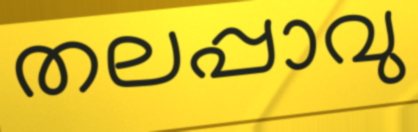
തലപ്പാവു